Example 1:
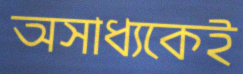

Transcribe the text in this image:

অসাধ্যকেই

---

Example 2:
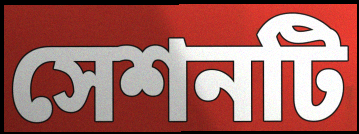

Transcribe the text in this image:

সেশনটি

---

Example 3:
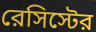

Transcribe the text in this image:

রেসিস্টের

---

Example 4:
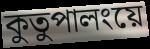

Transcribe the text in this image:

কুতুপালংয়ে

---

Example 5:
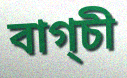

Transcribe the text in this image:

বাগ্চী